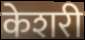
केशरी